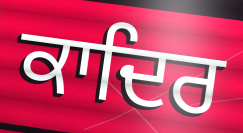
ਕਾਦਿਰ